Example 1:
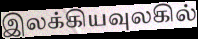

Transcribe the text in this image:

இலக்கியவுலகில்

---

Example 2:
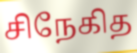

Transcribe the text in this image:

சிநேகித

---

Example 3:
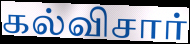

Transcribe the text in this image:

கல்விசார்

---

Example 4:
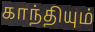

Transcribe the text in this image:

காந்தியும்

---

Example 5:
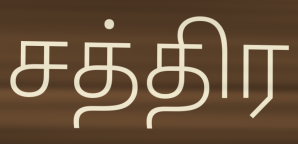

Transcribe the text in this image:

சத்திர